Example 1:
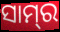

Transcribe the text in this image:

ସାମ୍‌ର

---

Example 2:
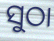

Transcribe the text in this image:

ସୁଠା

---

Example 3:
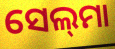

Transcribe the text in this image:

ସେଲ୍‌ମା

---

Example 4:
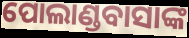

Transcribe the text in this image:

ପୋଲାଣ୍ଡବାସାଙ୍କ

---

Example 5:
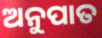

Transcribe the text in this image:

ଅନୁପାତ